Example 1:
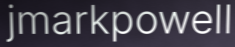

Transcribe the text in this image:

jmarkpowell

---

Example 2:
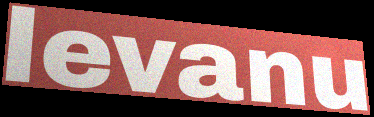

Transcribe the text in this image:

levanu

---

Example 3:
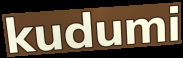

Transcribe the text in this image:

kudumi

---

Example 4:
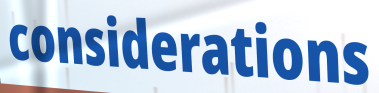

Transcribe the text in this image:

considerations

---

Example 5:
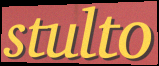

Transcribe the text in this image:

stulto